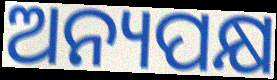
ଅନ୍ୟପକ୍ଷ